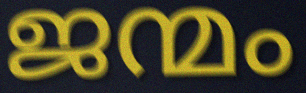
ജന്മം